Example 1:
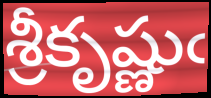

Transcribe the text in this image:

శ్రీకృష్ణుఁ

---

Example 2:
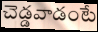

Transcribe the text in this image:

చెడ్డవాడంటే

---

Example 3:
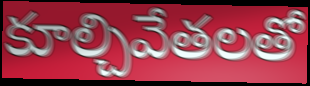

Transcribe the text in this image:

కూల్చివేతలతో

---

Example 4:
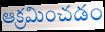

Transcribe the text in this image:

ఆక్రమించడం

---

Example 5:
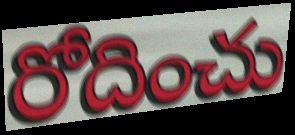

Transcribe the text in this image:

రోదించు